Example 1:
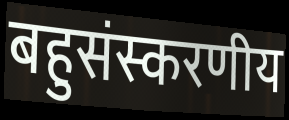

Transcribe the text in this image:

बहुसंस्करणीय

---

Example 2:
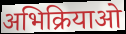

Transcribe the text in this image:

अभिक्रियाओ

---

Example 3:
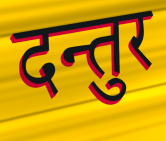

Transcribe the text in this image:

दन्तुर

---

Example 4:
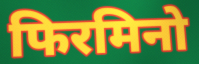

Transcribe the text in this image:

फिरमिनो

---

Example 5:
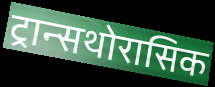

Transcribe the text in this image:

ट्रान्सथोरासिक